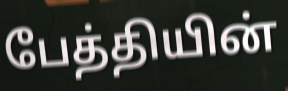
பேத்தியின்